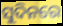
ସୁଦିନରେ